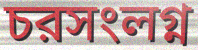
চরসংলগ্ন